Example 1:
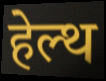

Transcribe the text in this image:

हेल्थ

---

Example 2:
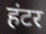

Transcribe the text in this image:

हंटर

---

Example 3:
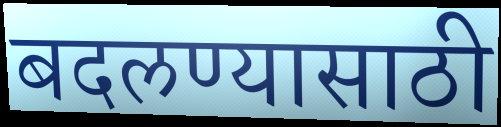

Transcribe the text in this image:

बदलण्यासाठी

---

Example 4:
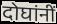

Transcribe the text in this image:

दोघांनीं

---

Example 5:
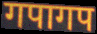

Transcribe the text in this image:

गपागप